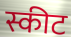
स्‍कीट